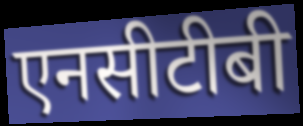
एनसीटीबी